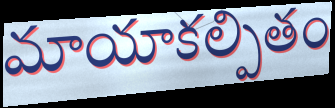
మాయాకల్పితం